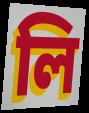
লি